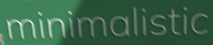
minimalistic